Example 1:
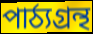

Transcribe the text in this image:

পাঠ্যগ্রন্থ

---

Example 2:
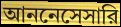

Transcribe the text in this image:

আননেসেসারি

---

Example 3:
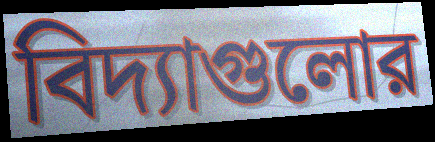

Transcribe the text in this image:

বিদ্যাগুলোর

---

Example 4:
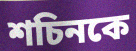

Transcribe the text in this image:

শচিনকে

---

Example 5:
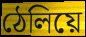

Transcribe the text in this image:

ঠেলিয়ে